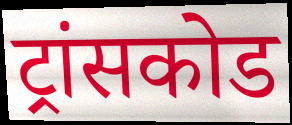
ट्रांसकोड